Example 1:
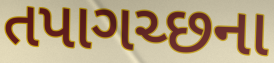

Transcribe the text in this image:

તપાગચ્છના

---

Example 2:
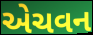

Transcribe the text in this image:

એચવન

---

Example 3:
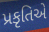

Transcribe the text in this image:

પ્રકૃતિએ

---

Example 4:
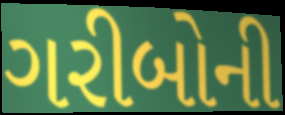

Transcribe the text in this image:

ગરીબોની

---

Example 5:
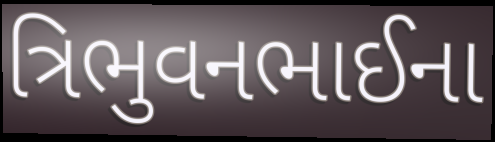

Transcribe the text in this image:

ત્રિભુવનભાઈના